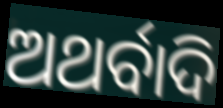
ଅଥର୍ବାଦି